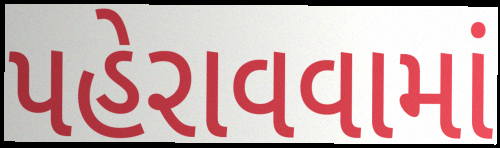
પહેરાવવામાં